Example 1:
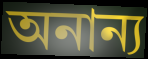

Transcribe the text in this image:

অনান্য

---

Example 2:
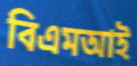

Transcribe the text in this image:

বিএমআই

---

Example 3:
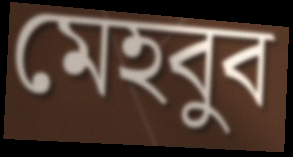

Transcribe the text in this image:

মেহবুব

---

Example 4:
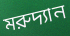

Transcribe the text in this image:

মৰুদ্যান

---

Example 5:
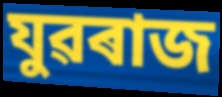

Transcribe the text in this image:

যুৱৰাজ